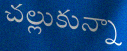
చల్లుకున్నా